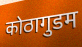
कोठागुडम